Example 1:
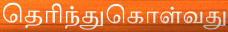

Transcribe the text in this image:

தெரிந்துகொள்வது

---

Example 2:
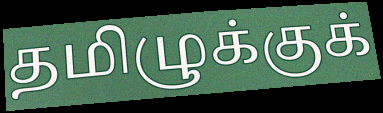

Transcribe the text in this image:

தமிழுக்குக்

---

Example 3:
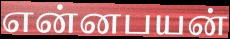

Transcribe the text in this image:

என்னபயன்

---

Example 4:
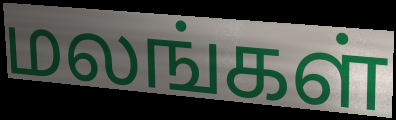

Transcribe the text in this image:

மலங்கள்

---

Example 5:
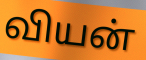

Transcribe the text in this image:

வியன்